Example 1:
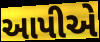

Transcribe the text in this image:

આપીએ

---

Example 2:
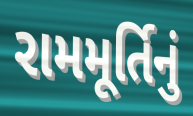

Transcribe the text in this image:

રામમૂર્તિનું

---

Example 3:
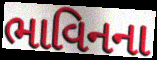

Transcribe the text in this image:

ભાવિનના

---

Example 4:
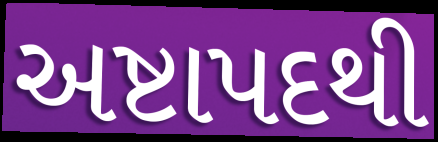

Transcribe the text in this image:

અષ્ટાપદથી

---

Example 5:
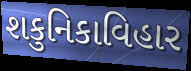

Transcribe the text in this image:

શકુનિકાવિહાર